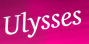
Ulysses